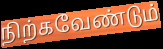
நிற்கவேண்டும்